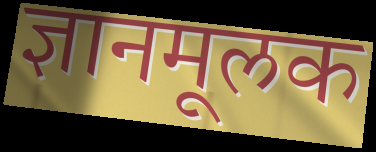
ज्ञानमूलक